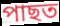
পাছত